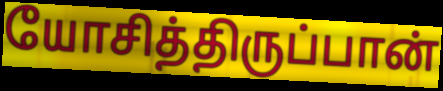
யோசித்திருப்பான்